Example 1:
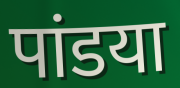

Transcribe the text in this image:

पांडया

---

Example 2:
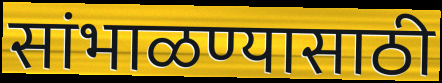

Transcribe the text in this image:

सांभाळण्यासाठी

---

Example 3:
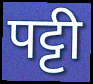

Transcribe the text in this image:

पट्टी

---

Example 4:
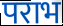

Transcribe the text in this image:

पराभ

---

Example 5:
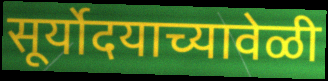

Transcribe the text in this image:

सूर्योदयाच्यावेळी